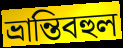
ভ্রান্তিবহুল